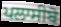
ਪਲਾਸੀਬੋ